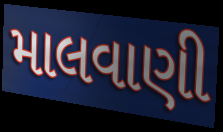
માલવાણી